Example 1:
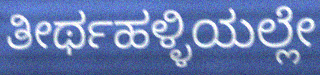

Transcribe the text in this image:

ತೀರ್ಥಹಳ್ಳಿಯಲ್ಲೇ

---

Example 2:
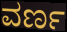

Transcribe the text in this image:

ವರ್ಣ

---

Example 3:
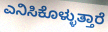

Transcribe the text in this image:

ಎನಿಸಿಕೊಳ್ಳುತ್ತಾರೆ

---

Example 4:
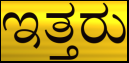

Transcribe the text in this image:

ಇತ್ತರು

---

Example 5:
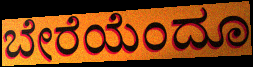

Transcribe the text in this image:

ಬೇರೆಯೆಂದೂ